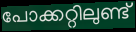
പോക്കറ്റിലുണ്ട്